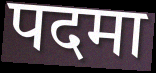
पदमा